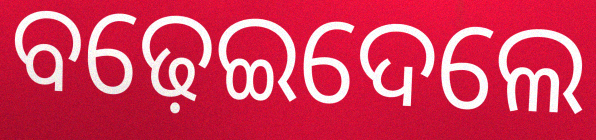
ବଢ଼େଇଦେଲେ